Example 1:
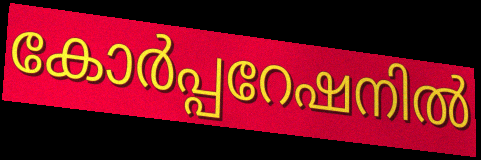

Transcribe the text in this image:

കോർപ്പറേഷനിൽ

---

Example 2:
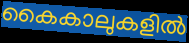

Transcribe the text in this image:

കൈകാലുകളിൽ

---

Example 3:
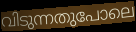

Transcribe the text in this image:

വിടുന്നതുപോലെ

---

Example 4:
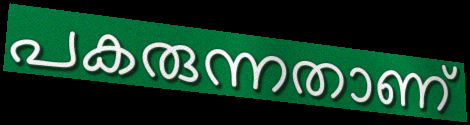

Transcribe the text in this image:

പകരുന്നതാണ്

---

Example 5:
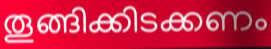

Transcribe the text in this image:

തൂങ്ങിക്കിടക്കണം